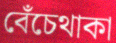
বেঁচেথাকা